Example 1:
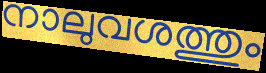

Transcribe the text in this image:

നാലുവശത്തും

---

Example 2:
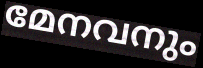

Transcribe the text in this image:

മേനവനും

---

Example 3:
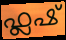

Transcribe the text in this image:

ഫ്ലഷ്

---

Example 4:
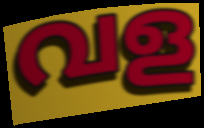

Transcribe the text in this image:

വള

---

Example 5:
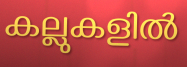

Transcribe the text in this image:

കല്ലുകളിൽ